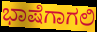
ಭಾಷೆಗಾಗಲಿ